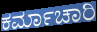
ಕರ್ಮಾಚಾರಿ